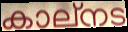
കാല്നട